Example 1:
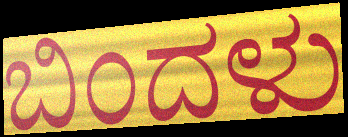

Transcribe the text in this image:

ಬಿಂದಳು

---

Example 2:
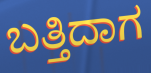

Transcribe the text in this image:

ಬತ್ತಿದಾಗ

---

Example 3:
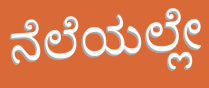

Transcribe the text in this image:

ನೆಲೆಯಲ್ಲೇ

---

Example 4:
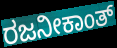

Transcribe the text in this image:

ರಜನೀಕಾಂತ್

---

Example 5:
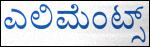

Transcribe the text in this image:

ಎಲಿಮೆಂಟ್ಸ್